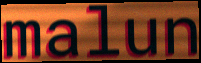
malun